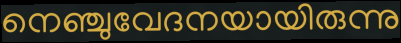
നെഞ്ചുവേദനയായിരുന്നു